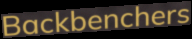
Backbenchers